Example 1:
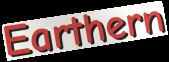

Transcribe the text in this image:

Earthern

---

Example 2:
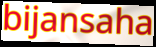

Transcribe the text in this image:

bijansaha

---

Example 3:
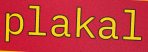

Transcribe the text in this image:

plakal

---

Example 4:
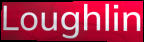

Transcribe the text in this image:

Loughlin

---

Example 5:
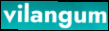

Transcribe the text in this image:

vilangum